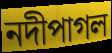
নদীপাগল